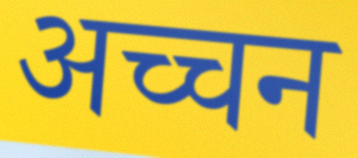
अच्चन